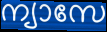
ന്യാസേ